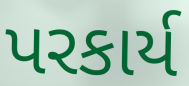
પરકાર્ય